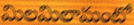
మిలమిలామంటో